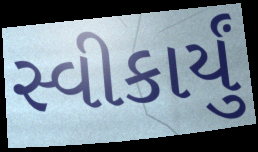
સ્વીકાર્યું